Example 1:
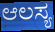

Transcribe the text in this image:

ಆಲಸ್ಯ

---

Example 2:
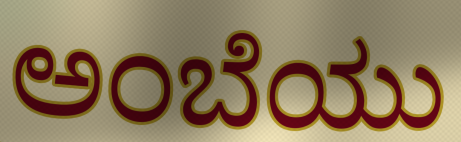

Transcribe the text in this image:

ಅಂಬೆಯು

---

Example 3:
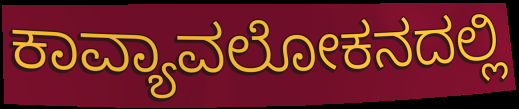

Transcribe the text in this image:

ಕಾವ್ಯಾವಲೋಕನದಲ್ಲಿ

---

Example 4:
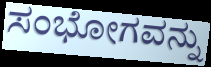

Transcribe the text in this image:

ಸಂಭೋಗವನ್ನು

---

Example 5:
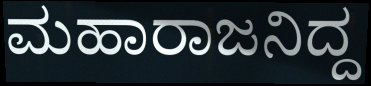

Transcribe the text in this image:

ಮಹಾರಾಜನಿದ್ದ